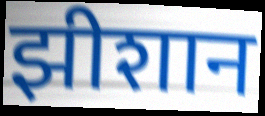
झीशान